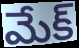
మేక్